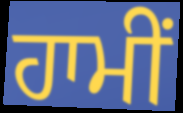
ਹਾਮੀਂ